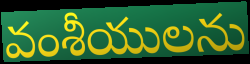
వంశీయులను